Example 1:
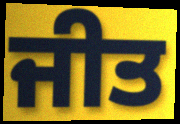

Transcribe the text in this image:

ਜੀਤ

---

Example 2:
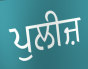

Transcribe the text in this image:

ਪੁਲੀਜ਼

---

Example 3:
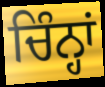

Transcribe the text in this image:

ਚਿੰਨ੍ਹਾਂ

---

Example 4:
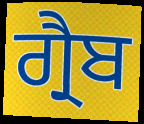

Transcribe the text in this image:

ਗ੍ਰੈਬ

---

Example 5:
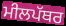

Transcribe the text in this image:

ਮੀਲਪੱਥਰ